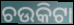
ଚଉକିଟା